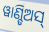
ୱାଣ୍ଡିଅସ୍